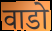
वाडो